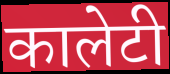
कालेटी